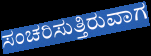
ಸಂಚರಿಸುತ್ತಿರುವಾಗ